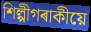
শিল্পীগৰাকীয়ে